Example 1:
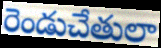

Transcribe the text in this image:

రెండుచేతులా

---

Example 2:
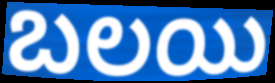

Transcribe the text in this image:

బలయి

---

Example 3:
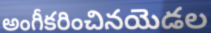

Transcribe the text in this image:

అంగీకరించినయెడల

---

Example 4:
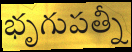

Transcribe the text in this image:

భృగుపత్నీ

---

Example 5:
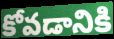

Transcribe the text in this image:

కోవడానికి